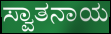
ಸ್ವಾತನಾಯ